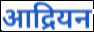
आद्रियन